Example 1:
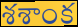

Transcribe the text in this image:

శశాంక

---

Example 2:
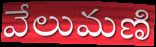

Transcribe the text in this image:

వేలుమణి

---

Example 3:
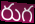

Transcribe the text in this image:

రుగ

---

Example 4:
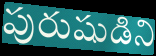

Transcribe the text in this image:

పురుషుడిని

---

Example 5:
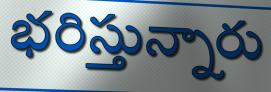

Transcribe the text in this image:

భరిస్తున్నారు